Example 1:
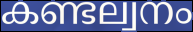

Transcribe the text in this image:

കണ്ടല്വനം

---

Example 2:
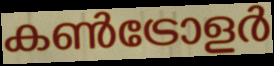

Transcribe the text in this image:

കൺട്രോളർ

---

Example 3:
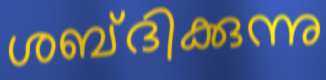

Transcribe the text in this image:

ശബ്ദിക്കുന്നു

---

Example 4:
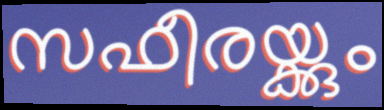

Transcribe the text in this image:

സഫീരയ്ക്കും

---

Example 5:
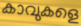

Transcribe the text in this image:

കാവുകളെ